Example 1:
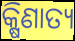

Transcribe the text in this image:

କ୍ଷିଣାତ୍ୟ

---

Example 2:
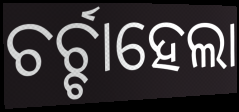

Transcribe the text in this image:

ଚର୍ଚ୍ଚାହେଲା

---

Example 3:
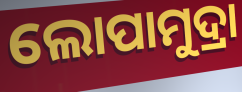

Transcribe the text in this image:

ଲୋପାମୁଦ୍ରା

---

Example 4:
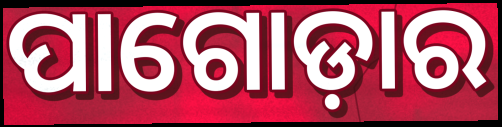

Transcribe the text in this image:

ପାଗୋଡ଼ାର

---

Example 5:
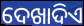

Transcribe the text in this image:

ଦେଖାଦିଏ